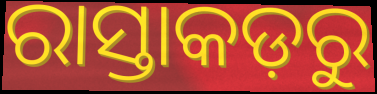
ରାସ୍ତାକଡ଼ରୁ